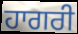
ਹਾਗਰੀ